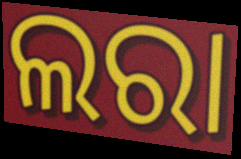
ଲରା